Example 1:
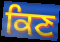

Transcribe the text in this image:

ਕਿਣ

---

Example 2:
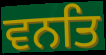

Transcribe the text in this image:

ਵਨਤਿ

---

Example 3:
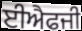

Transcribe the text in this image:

ਈਐਫਜੀ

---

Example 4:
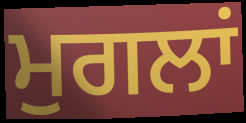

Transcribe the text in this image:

ਮੁਗਲਾਂ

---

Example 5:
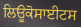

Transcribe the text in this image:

ਲਿਊਕੋਸਾਈਟਸ